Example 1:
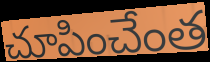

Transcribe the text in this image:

చూపించేంత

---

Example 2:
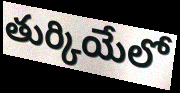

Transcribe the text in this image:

తుర్కియేలో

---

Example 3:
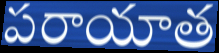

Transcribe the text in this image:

పరాయాత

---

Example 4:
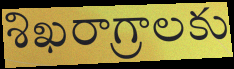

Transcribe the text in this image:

శిఖరాగ్రాలకు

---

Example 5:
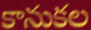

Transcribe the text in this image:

కానుకల